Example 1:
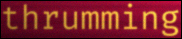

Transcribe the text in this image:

thrumming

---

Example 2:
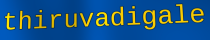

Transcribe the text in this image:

thiruvadigale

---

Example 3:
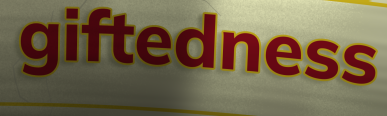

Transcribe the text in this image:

giftedness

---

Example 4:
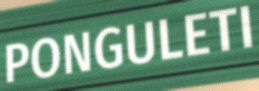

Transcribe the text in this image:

PONGULETI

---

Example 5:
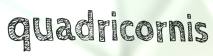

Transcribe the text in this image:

quadricornis